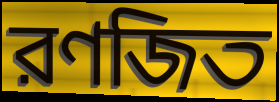
রণজিত